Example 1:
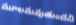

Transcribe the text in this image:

మూలమవుతుందని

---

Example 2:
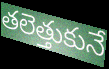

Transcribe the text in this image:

తలెత్తుకునే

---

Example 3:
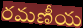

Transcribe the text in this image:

రమణీయ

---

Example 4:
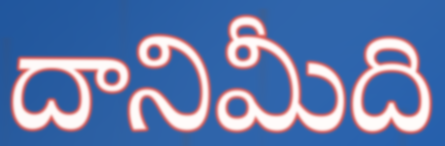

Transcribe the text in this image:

దానిమీది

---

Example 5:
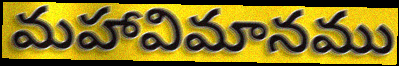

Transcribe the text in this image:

మహావిమానము